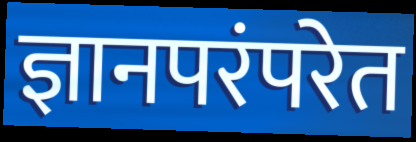
ज्ञानपरंपरेत